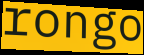
rongo